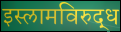
इस्लामविरुद्ध